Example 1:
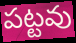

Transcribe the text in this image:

పట్టవు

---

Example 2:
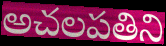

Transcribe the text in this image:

అచలపతిని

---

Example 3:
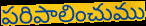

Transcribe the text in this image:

పరిపాలించుము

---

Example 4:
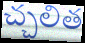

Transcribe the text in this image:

చ్చలిత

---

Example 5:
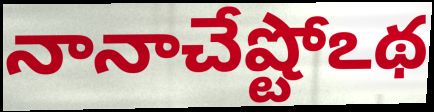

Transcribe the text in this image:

నానాచేష్టోఽథ